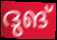
ദുങ്